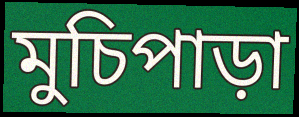
মুচিপাড়া